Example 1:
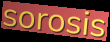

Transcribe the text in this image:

sorosis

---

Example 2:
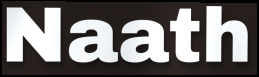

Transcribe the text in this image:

Naath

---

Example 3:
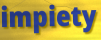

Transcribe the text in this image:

impiety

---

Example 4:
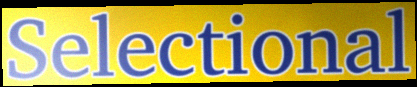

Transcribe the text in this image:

Selectional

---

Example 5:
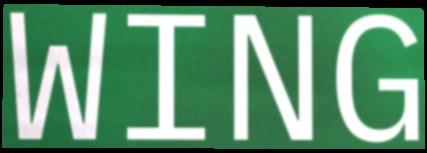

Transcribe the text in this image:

WING